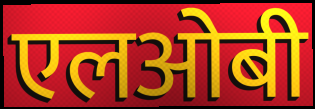
एलओबी